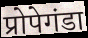
प्रोपेगंडा